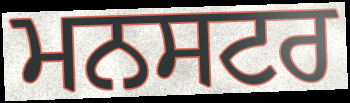
ਮਨਸਟਰ